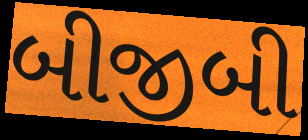
બીજીબી